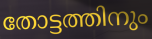
തോട്ടത്തിനും